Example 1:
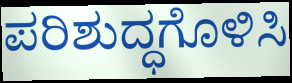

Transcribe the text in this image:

ಪರಿಶುದ್ಧಗೊಳಿಸಿ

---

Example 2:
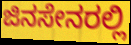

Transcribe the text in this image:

ಜಿನಸೇನರಲ್ಲಿ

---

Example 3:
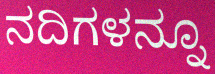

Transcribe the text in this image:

ನದಿಗಳನ್ನೂ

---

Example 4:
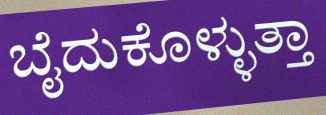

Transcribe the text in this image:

ಬೈದುಕೊಳ್ಳುತ್ತಾ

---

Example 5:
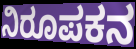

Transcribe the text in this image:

ನಿರೂಪಕನ